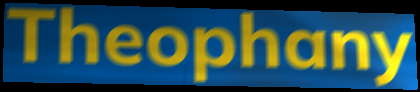
Theophany